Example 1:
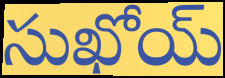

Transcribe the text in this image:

సుఖోయ్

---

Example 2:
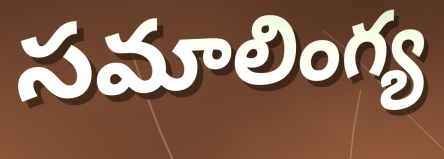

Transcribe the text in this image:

సమాలింగ్య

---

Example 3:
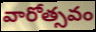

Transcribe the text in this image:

వారోత్సవం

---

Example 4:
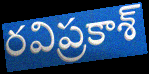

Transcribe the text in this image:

రవిప్రకాశ్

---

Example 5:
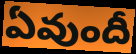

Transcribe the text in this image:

ఏవుందీ